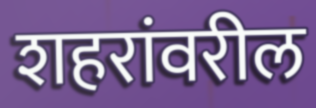
शहरांवरील